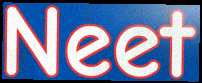
Neet